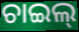
ଚାଇଲ୍